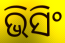
ଭିସିଂ